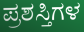
ಪ್ರಶಸ್ತಿಗಳ